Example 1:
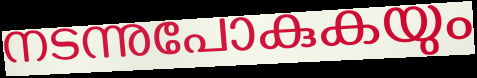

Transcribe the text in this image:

നടന്നുപോകുകയും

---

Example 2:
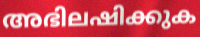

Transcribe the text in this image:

അഭിലഷിക്കുക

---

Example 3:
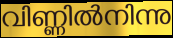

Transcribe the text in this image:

വിണ്ണിൽനിന്നു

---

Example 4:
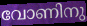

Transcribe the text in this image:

വോണിനു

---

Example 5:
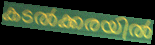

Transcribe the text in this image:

കടൽക്കരയിൽ